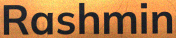
Rashmin